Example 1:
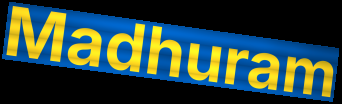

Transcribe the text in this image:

Madhuram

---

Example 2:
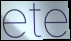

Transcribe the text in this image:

ete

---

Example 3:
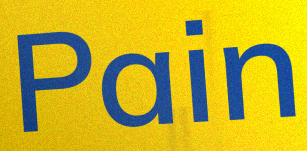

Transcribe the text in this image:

Pain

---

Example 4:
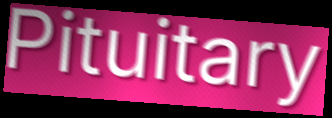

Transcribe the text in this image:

Pituitary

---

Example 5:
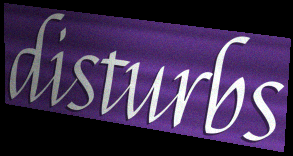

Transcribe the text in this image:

disturbs